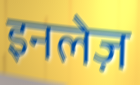
इनलेज़